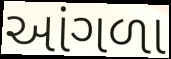
આંગળા